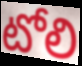
టోలి